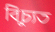
বিচ্যুত